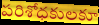
పరిశోధకులకూ